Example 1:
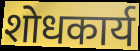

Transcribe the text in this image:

शोधकार्य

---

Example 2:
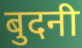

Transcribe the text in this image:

बुदनी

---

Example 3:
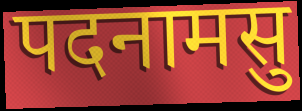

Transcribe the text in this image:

पदनामसु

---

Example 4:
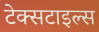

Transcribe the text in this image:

टेक्सटाइल्स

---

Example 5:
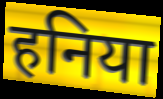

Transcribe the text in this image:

हनिया